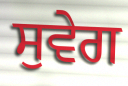
ਸੁਵੇਗ